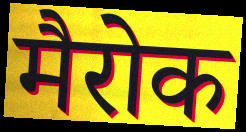
मैरोक